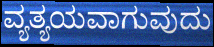
ವ್ಯತ್ಯಯವಾಗುವುದು